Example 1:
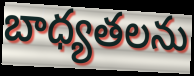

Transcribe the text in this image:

బాధ్యతలను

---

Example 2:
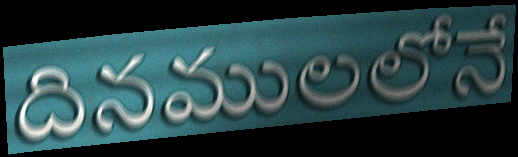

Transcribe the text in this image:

దినములలోనే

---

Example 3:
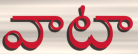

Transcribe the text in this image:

వాటా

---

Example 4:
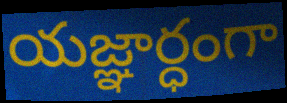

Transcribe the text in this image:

యజ్ఞార్ధంగా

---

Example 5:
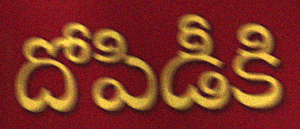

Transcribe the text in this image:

దోపిడీకి